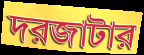
দরজাটার